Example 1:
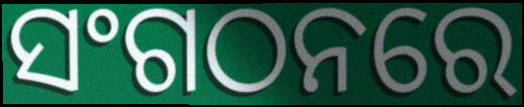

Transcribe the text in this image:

ସଂଗଠନରେ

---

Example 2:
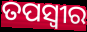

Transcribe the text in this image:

ତପସ୍ଵୀର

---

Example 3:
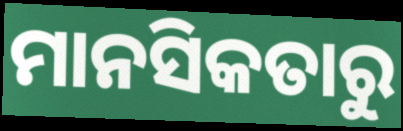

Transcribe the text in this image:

ମାନସିକତାରୁ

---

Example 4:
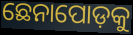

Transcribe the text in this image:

ଛେନାପୋଡ଼କୁ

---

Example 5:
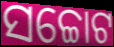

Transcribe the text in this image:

ସଚ୍ଚୋଟ